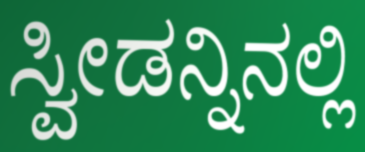
ಸ್ವೀಡನ್ನಿನಲ್ಲಿ